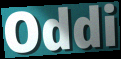
Oddi